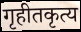
गृहीतकृत्य